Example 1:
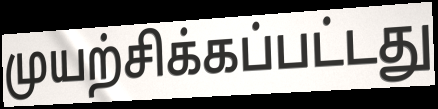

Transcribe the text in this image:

முயற்சிக்கப்பட்டது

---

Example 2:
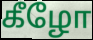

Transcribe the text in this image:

கீழோ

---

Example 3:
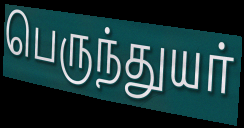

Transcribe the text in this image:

பெருந்துயர்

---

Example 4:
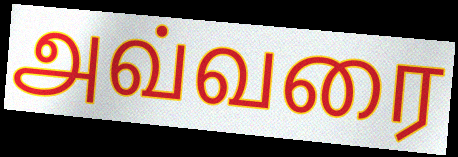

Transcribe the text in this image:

அவ்வரை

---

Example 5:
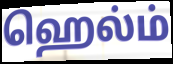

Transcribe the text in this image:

ஹெல்ம்